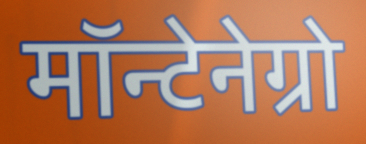
मॉन्टेनेग्रो